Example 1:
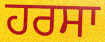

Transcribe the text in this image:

ਹਰਸਾ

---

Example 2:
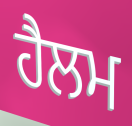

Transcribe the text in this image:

ਹੈਲਮ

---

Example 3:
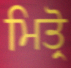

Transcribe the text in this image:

ਮਿਤ੍ਰੋ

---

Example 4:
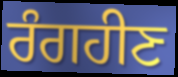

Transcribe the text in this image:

ਰੰਗਹੀਣ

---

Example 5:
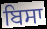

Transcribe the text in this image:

ਬਿਸਾ